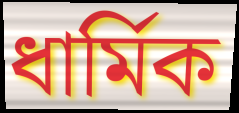
ধাৰ্মিক